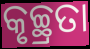
କୃଚ୍ଛ୍ରତା